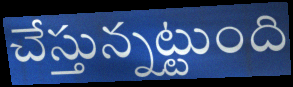
చేస్తున్నట్టుంది